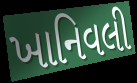
ખાનિવલી